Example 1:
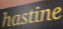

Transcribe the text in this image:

hastine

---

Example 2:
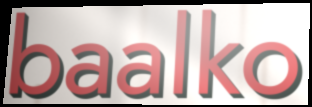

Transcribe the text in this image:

baalko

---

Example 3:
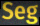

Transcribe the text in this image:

Seg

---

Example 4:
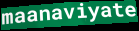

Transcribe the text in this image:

maanaviyate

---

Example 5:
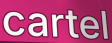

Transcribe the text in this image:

cartel